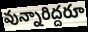
వున్నారిద్దరూ